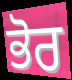
ਭੋਰ